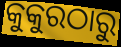
କୁକୁରଠାରୁ